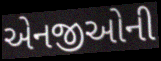
એનજીઓની